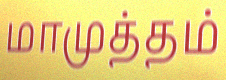
மாமுத்தம்